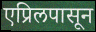
एप्रिलपासून